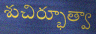
శుచిర్భూత్వా